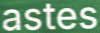
astes